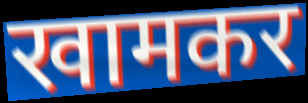
खामकर